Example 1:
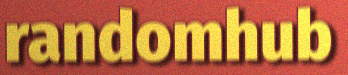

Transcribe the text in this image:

randomhub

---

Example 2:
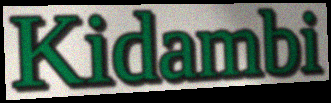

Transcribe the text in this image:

Kidambi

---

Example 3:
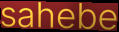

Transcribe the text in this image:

sahebe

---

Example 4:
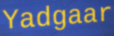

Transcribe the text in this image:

Yadgaar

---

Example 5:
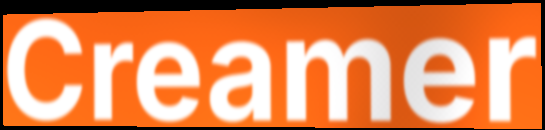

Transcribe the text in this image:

Creamer